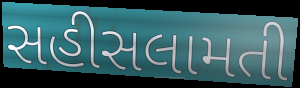
સહીસલામતી